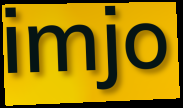
imjo